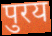
पुरय